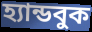
হ্যান্ডবুক